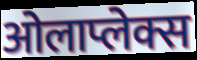
ओलाप्लेक्स